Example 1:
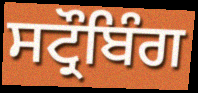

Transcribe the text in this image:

ਸਟ੍ਰੌਬਿੰਗ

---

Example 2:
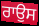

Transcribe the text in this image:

ਰਾਉਸ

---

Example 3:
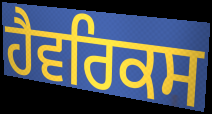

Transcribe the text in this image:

ਹੈਵਰਿਕਸ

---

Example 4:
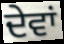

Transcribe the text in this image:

ਦੇਵਾਂ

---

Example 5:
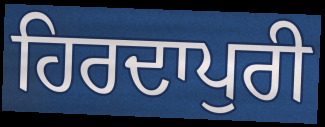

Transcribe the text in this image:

ਹਿਰਦਾਪੁਰੀ